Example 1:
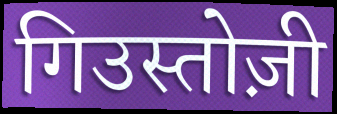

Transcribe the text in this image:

गिउस्तोज़ी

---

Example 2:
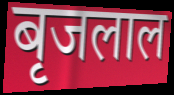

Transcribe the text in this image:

बृजलाल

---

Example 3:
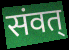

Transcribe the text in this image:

संवत्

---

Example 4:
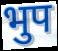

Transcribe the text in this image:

भुप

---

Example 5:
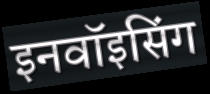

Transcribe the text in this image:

इनवॉइसिंग